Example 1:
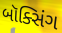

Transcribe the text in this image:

બૉક્સિંગ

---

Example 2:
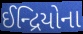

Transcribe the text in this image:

ઈન્દ્રિયોના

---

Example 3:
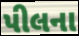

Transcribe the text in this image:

પીલના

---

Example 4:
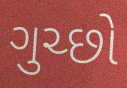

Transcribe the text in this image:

ગુચ્છો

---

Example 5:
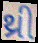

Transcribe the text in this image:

થ્રી